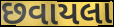
છવાયલા